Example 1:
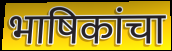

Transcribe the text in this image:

भाषिकांचा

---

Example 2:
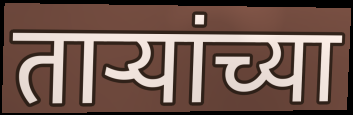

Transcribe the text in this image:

तार्‍यांच्या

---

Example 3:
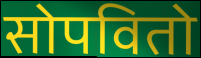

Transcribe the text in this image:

सोपवितो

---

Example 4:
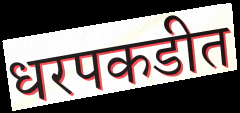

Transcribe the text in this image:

धरपकडीत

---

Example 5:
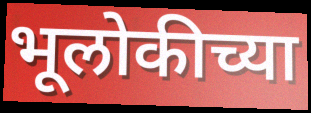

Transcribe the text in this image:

भूलोकीच्या